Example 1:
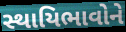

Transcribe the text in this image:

સ્થાયિભાવોને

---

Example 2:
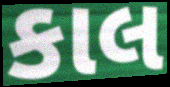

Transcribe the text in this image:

કાલ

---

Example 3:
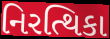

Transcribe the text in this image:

નિરત્થિકા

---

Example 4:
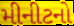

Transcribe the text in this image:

મીનીટનો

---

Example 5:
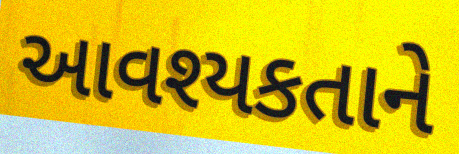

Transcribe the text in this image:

આવશ્યકતાને